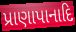
પ્રાણાપાનાદિ